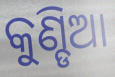
କୁଣ୍ଡିଆ